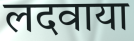
लदवाया